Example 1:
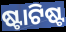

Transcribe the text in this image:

ଷ୍ଟାଟିଷ୍ଟ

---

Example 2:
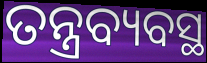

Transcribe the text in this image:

ତନ୍ତ୍ରବ୍ୟବସ୍ଥ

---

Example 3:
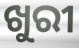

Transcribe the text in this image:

ଖୁରୀ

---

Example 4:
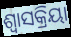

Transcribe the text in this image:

ଶ୍ବାସକ୍ରିୟା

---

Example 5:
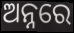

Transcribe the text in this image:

ଅନ୍ନରେ